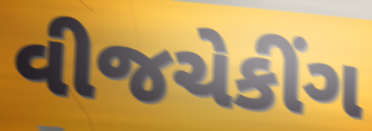
વીજચેકીંગ